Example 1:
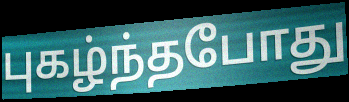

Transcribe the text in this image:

புகழ்ந்தபோது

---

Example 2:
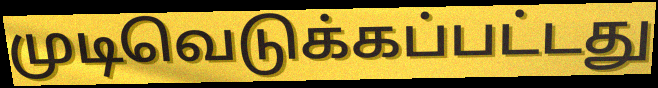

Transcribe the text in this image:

முடிவெடுக்கப்பட்டது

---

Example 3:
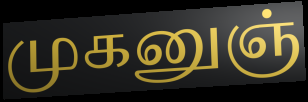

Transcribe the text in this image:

முகனுஞ்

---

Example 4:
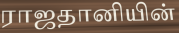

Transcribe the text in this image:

ராஜதானியின்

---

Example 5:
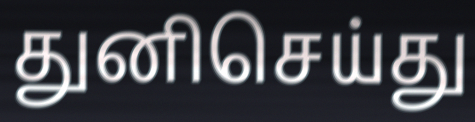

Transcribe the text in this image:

துனிசெய்து